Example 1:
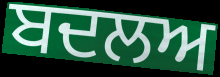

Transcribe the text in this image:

ਬਦਲਅ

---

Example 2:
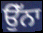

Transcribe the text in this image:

ਉੱਨਾ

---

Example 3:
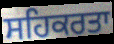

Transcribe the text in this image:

ਸਹਿਕਰਤਾ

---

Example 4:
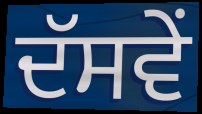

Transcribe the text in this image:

ਦੱਸਵੇਂ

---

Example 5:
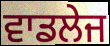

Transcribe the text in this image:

ਵਾਡਲੇਜ